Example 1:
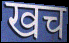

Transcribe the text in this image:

खच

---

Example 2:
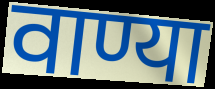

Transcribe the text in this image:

वाण्या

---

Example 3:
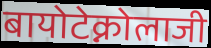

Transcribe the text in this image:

बायोटेक्नोलाजी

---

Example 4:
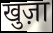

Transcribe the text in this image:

खुज़ा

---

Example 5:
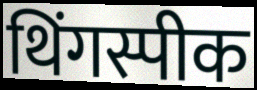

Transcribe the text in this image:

थिंगस्पीक